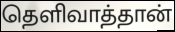
தெளிவாத்தான்